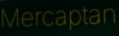
Mercaptan